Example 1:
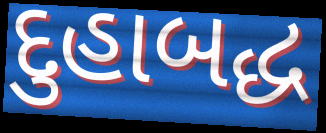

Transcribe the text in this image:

દુહાબદ્ધ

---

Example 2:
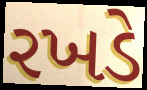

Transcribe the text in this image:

રખડે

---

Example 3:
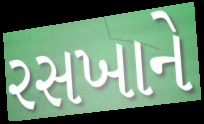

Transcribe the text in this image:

રસખાને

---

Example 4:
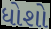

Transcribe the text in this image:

ધોશો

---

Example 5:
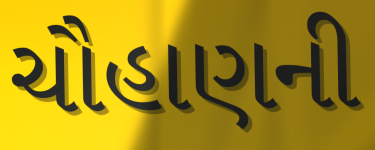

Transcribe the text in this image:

ચૌહાણની